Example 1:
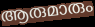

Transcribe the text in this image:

ആരുമാരും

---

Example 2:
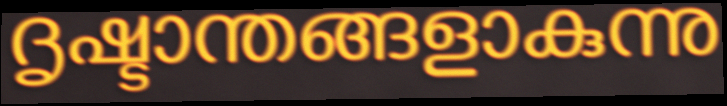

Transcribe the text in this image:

ദൃഷ്ടാന്തങ്ങളാകുന്നു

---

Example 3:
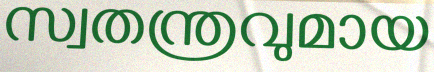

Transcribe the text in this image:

സ്വതന്ത്രവുമായ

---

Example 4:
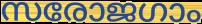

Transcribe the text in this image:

സരോജഗാം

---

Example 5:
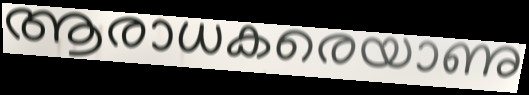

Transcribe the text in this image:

ആരാധകരെയാണു